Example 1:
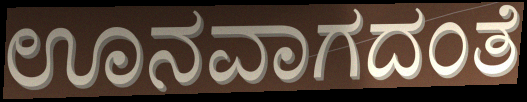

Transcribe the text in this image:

ಊನವಾಗದಂತೆ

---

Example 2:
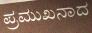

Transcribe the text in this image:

ಪ್ರಮುಖನಾದ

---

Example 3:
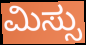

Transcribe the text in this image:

ಮಿಸ್ಸು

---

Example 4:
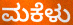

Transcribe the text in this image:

ಮಕೆಳು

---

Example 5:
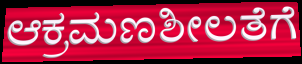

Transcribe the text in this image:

ಆಕ್ರಮಣಶೀಲತೆಗೆ